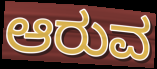
ಆರುವ